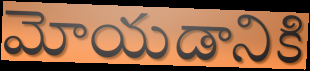
మోయడానికి